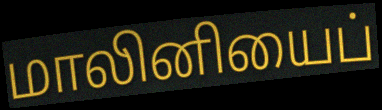
மாலினியைப்